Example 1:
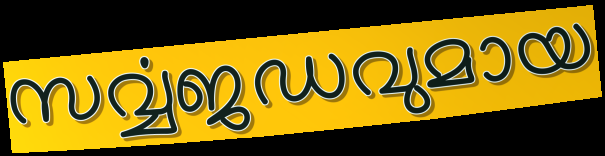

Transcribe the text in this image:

സൎവ്വജഡവുമായ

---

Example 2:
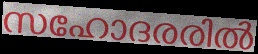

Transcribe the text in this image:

സഹോദരരിൽ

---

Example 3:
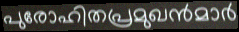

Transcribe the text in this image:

പുരോഹിതപ്രമുഖൻമാർ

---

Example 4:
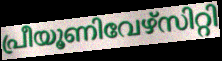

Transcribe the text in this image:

പ്രീയൂണിവേഴ്സിറ്റി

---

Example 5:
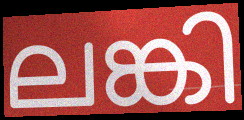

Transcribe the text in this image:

ലങ്കി